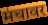
मंचावर